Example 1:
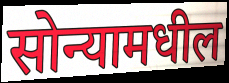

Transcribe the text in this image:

सोन्यामधील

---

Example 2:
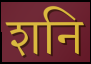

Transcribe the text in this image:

शनि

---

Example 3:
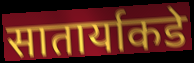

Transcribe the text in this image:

सातार्याकडे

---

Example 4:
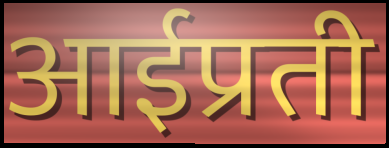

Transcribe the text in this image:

आईप्रती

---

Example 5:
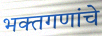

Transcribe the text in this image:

भक्तगणांचे